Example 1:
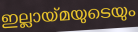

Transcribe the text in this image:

ഇല്ലായ്മയുടെയും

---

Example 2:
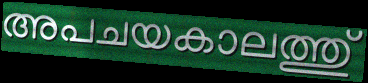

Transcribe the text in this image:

അപചയകാലത്തു്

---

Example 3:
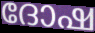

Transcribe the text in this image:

ദോഷ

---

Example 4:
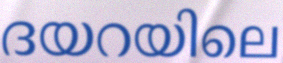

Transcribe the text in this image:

ദയറയിലെ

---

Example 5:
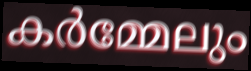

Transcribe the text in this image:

കർമ്മേലും